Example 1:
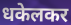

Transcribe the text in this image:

धकेलकर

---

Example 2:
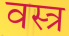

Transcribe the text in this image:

वस्‍त्र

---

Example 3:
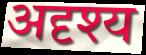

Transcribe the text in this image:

अदृश्य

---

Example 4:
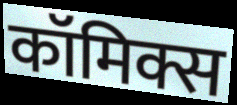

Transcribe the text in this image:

कॉमिक्स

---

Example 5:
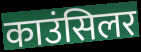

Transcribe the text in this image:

काउंसिलर